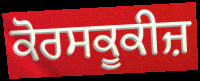
ਕੋਰਸਕੂਕੀਜ਼